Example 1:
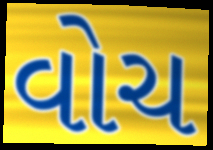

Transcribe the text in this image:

વોચ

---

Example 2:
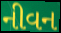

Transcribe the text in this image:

નીવન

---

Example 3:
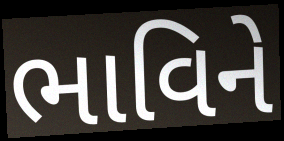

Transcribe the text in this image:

ભાવિને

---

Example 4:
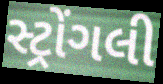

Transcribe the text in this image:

સ્ટ્રોંગલી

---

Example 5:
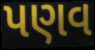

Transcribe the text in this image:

પણવ